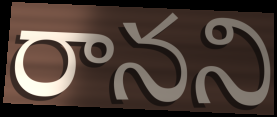
రానని